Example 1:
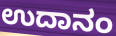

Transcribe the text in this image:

ಉದಾನಂ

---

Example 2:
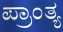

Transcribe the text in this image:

ಪ್ರಾಂತ್ಯ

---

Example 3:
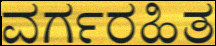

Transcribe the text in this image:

ವರ್ಗರಹಿತ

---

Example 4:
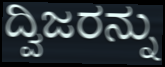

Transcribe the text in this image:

ದ್ವಿಜರನ್ನು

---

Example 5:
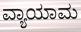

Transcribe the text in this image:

ವ್ಯಾಯಾಮ